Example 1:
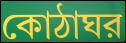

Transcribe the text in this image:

কোঠাঘর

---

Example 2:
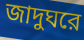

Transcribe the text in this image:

জাদুঘরে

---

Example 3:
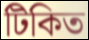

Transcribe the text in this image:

টিকিত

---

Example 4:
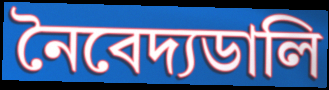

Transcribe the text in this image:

নৈবেদ্যডালি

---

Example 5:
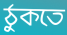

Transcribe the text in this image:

ঠুকতে